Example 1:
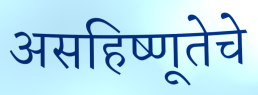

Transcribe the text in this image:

असहिष्णूतेचे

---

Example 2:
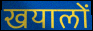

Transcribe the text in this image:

खयालों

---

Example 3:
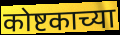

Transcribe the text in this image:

कोष्टकाच्या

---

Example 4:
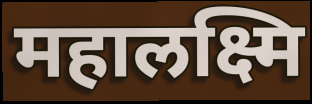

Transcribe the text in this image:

महालक्ष्मि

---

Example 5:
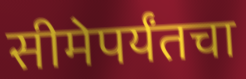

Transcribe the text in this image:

सीमेपर्यंतचा